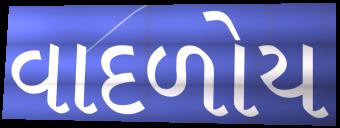
વાદળોય